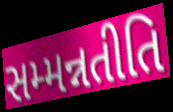
સમ્મન્નતીતિ